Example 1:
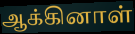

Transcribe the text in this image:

ஆக்கினாள்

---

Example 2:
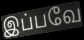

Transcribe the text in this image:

இப்பவே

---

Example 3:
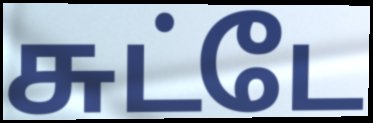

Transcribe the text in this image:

சுட்டே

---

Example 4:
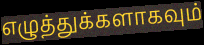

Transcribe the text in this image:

எழுத்துக்களாகவும்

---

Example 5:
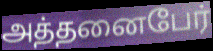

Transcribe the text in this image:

அத்தனைபேர்